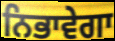
ਨਿਭਾਵੇਗਾ